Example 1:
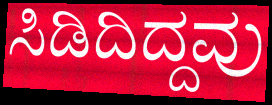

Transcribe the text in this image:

ಸಿಡಿದಿದ್ದವು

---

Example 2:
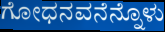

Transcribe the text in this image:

ಗೋಧನವನೆನ್ನೊಳು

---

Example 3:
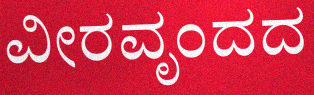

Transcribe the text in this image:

ವೀರವೃಂದದ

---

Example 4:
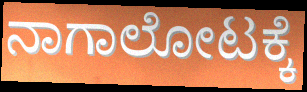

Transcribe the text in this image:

ನಾಗಾಲೋಟಕ್ಕೆ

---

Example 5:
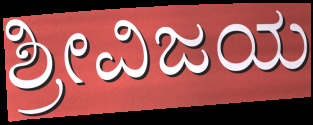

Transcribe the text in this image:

ಶ್ರೀವಿಜಯ